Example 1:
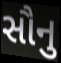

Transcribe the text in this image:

સૌનુ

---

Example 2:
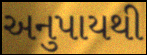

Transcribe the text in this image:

અનુપાયથી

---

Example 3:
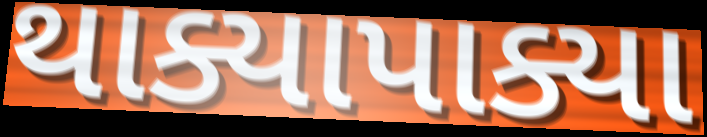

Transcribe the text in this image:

થાક્યાપાક્યા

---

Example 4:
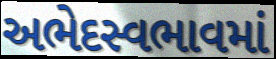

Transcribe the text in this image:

અભેદસ્વભાવમાં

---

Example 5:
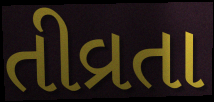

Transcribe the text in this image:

તીવ્રતા